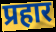
प्रहार